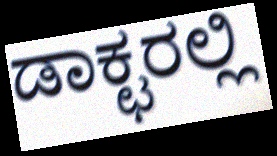
ಡಾಕ್ಟರಲ್ಲಿ